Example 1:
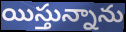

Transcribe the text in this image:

యిస్తున్నాను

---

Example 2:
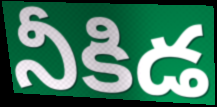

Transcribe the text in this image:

నీకిడ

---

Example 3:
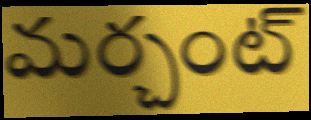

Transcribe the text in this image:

మర్చంట్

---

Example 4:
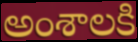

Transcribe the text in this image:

అంశాలకి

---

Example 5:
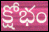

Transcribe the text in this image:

క్షోభం